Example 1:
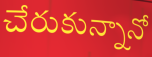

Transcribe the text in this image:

చేరుకున్నానో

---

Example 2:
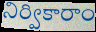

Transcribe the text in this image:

నిర్వికారాం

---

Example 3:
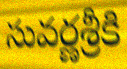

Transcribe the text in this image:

సువర్ణశ్రీకి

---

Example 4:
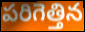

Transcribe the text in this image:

పరిగెత్తిన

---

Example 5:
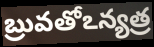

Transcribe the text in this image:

బ్రువతోఽన్యత్ర